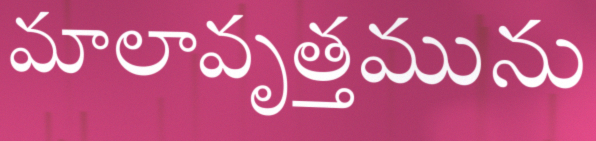
మాలావృత్తమును